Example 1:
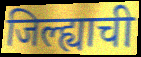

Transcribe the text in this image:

जिल्ह्याची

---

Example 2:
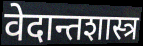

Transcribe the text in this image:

वेदान्तशास्त्र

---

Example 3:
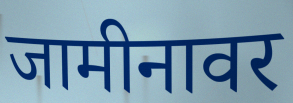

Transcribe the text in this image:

जामीनावर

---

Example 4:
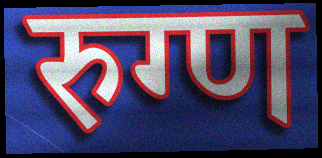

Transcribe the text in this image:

रुग्ण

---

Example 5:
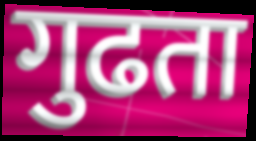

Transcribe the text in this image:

गुढता